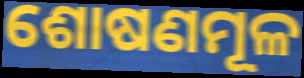
ଶୋଷଣମୂଳ